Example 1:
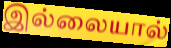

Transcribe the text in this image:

இல்லையால்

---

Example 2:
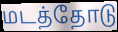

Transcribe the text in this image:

மடத்தோடு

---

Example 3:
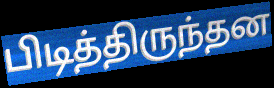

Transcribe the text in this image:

பிடித்திருந்தன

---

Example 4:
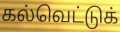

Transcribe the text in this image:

கல்வெட்டுக்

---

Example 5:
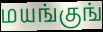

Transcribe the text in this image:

மயங்குங்